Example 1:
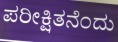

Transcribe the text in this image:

ಪರೀಕ್ಷಿತನೆಂದು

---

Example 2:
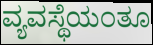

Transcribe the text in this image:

ವ್ಯವಸ್ಥೆಯಂತೂ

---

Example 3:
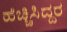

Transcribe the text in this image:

ಹೆಚ್ಚಿಸಿದ್ದರ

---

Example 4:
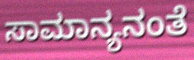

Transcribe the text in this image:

ಸಾಮಾನ್ಯನಂತೆ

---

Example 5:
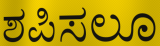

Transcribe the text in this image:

ಶಪಿಸಲೂ